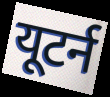
यूटर्न